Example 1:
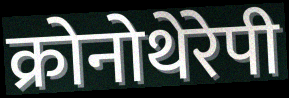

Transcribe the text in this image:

क्रोनोथेरेपी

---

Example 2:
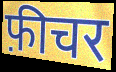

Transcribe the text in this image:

फ़ीचर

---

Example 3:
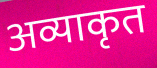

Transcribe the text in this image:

अव्याकृत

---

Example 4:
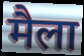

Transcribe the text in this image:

मैला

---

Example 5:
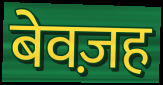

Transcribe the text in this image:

बेवज़ह